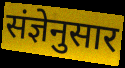
संज्ञेनुसार